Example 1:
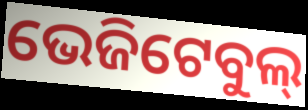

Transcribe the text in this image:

ଭେଜିଟେବୁଲ୍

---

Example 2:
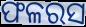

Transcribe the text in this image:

ଫଳରସ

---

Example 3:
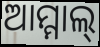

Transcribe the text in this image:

ଆମ୍ମାଲ୍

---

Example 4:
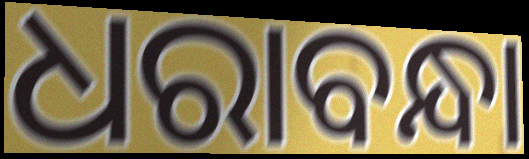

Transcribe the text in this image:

ଧରାବନ୍ଧା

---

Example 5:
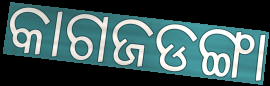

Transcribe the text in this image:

କାଗଜଡଙ୍ଗା